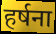
हर्षना